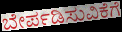
ಬೇರ್ಪಡಿಸುವಿಕೆಗೆ